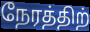
நேரத்திற்